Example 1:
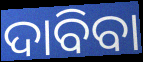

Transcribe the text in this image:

ଦାବିବା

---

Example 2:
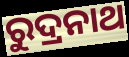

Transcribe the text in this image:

ରୁଦ୍ରନାଥ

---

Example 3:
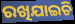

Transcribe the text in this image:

ରଖିଯାଇଚି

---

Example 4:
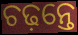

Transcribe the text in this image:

ଚଢ଼ନ୍ତେ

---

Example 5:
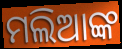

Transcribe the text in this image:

ମଲିଆଙ୍କ